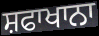
ਸ਼ਫਾਖਾਨਾ